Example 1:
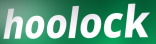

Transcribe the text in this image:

hoolock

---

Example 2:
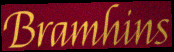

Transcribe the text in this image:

Bramhins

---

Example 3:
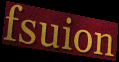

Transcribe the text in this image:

fsuion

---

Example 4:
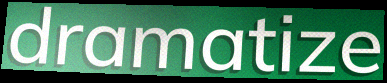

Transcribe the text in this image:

dramatize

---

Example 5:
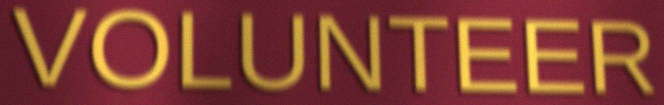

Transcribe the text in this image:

VOLUNTEER